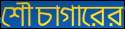
শৌচাগারের